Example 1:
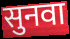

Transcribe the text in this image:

सुनवा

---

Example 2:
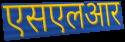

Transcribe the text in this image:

एसएलआर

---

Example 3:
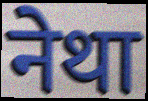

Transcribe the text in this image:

नेथा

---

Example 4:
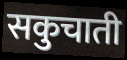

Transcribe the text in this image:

सकुचाती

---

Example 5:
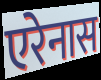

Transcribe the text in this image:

एरेनास